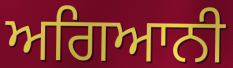
ਅਗਿਆਨੀ